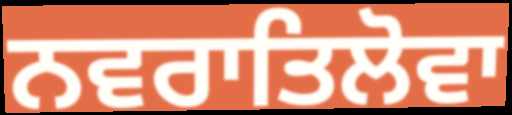
ਨਵਰਾਤਿਲੋਵਾ